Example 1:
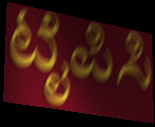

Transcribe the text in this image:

ಟೈಪಿಸಿ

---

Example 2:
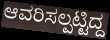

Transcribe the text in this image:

ಆವರಿಸಲ್ಪಟ್ಟಿದ್ದ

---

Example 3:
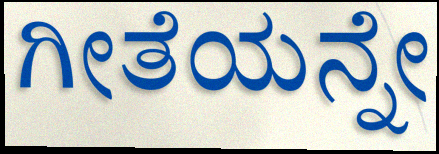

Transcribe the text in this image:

ಗೀತೆಯನ್ನೇ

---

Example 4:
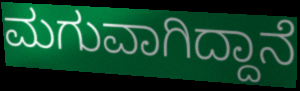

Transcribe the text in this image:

ಮಗುವಾಗಿದ್ದಾನೆ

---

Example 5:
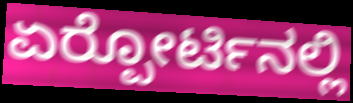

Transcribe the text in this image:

ಏರ್‍ಪೋರ್ಟಿನಲ್ಲಿ